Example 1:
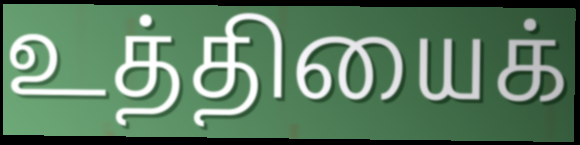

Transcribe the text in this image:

உத்தியைக்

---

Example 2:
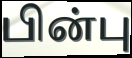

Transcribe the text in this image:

பின்பு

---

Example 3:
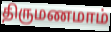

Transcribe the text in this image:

திருமணமாம்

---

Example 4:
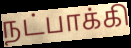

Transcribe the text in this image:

நட்பாக்கி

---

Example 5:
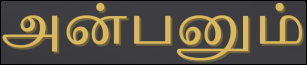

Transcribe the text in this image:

அன்பனும்